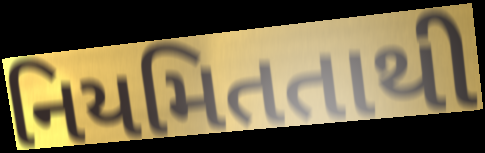
નિયમિતતાથી